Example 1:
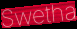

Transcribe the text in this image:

Swetha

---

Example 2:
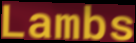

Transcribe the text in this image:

Lambs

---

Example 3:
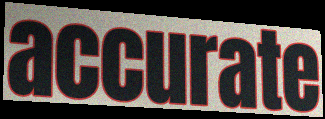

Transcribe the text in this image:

accurate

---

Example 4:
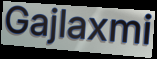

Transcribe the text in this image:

Gajlaxmi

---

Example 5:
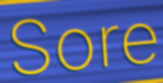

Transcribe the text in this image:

Sore